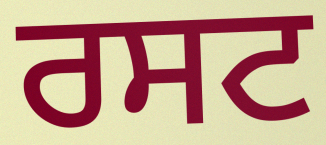
ਰਸਟ